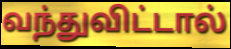
வந்துவிட்டால்